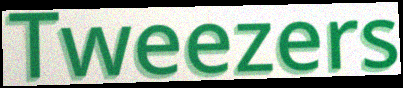
Tweezers